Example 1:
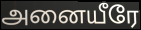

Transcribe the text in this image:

அனையீரே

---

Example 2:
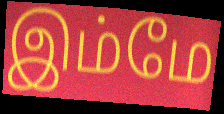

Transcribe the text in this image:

இம்மே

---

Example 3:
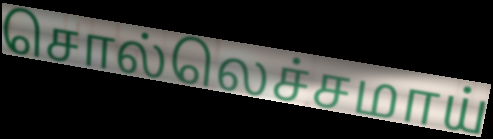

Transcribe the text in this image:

சொல்லெச்சமாய்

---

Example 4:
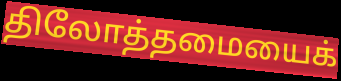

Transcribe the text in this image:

திலோத்தமையைக்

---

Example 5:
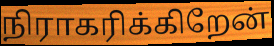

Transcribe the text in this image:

நிராகரிக்கிறேன்